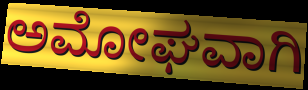
ಅಮೋಘವಾಗಿ